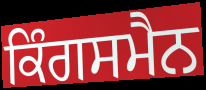
ਕਿੰਗਸਮੈਨ